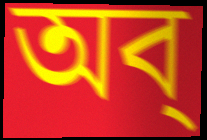
অব্